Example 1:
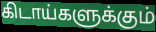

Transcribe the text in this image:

கிடாய்களுக்கும்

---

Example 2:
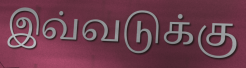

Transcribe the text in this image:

இவ்வடுக்கு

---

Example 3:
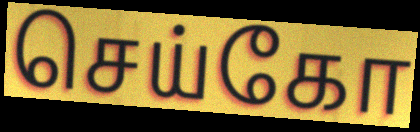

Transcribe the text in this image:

செய்கோ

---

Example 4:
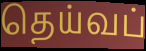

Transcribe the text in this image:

தெய்வப்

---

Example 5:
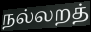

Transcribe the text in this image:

நல்லறத்